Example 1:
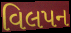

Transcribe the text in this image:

વિલપન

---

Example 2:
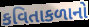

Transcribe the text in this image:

કવિતાકળાનો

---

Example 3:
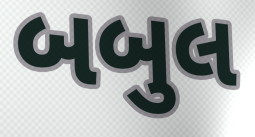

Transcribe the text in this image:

બબુલ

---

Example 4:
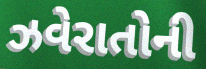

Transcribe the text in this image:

ઝવેરાતોની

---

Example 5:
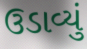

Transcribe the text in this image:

ઉડાવ્યું